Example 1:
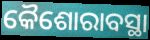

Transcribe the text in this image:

କୈଶୋରାବସ୍ଥା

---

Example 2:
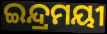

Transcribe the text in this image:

ଇନ୍ଦ୍ରମୟୀ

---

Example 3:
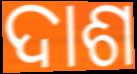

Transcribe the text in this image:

ଦାଶ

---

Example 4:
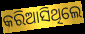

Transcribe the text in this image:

କରିଆସିଥିଲେ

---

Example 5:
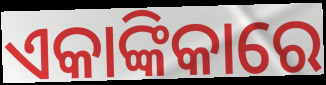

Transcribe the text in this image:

ଏକାଙ୍କିକାରେ